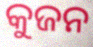
କୁଜନ